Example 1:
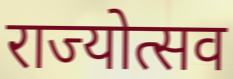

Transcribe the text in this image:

राज्योत्सव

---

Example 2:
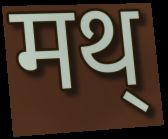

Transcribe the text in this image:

मथ्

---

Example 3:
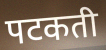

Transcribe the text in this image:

पटकती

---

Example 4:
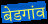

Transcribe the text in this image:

बेडगांव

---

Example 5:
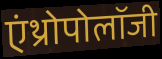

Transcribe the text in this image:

एंथ्रोपोलॉजी